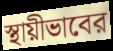
স্থায়ীভাবের